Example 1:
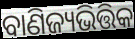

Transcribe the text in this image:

ବାଣିଜ୍ୟଭିତ୍ତିକ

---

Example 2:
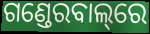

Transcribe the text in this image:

ଗଣ୍ଡେରବାଲ୍‌ରେ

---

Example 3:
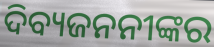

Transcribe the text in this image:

ଦିବ୍ୟଜନନୀଙ୍କର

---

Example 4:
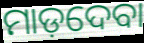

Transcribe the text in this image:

ମାଡ଼ଦେବା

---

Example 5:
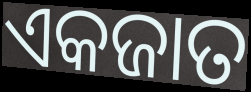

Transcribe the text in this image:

ଏକଜାତ